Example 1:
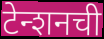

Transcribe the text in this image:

टेन्शनची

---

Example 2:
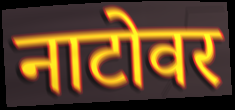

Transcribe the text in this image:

नाटोवर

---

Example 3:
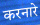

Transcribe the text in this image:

करनारे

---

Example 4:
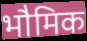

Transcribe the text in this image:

भौमिक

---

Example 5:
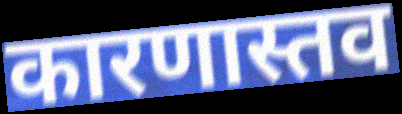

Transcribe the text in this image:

कारणास्तव